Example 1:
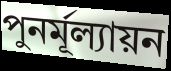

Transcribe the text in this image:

পুনর্মূল্যায়ন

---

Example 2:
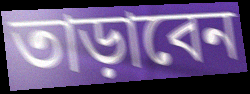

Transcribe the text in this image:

তাড়াবেন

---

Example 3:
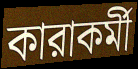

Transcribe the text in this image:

কারাকর্মী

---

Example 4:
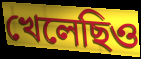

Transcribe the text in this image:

খেলেছিও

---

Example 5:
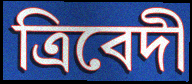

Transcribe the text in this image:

ত্রিবেদী